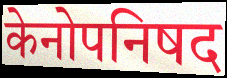
केनोपनिषद